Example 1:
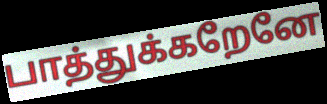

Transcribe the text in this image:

பாத்துக்கறேனே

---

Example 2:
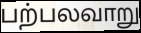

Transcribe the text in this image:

பற்பலவாறு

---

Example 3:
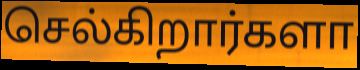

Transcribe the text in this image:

செல்கிறார்களா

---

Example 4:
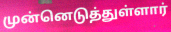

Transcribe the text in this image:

முன்னெடுத்துள்ளார்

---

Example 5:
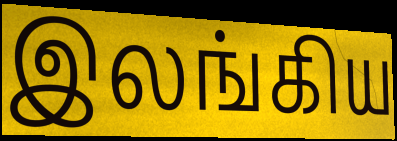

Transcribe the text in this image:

இலங்கிய